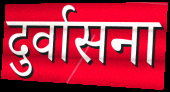
दुर्वासना